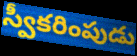
స్వీకరింపుడు